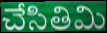
చేసితిమి